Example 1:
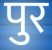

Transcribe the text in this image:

पुर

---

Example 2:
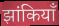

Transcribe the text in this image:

झांकियाँ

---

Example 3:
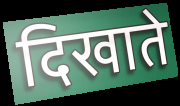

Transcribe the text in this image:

दिखाते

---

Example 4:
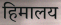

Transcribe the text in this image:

हिमालय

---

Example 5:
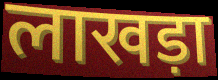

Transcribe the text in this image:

लाखड़ा